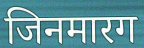
जिनमारग